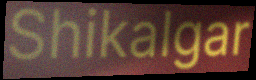
Shikalgar